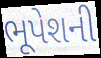
ભૂપેશની